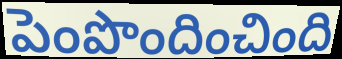
పెంపొందించింది